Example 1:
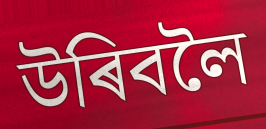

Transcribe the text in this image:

উৰিবলৈ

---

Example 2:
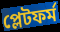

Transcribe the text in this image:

প্লেটফৰ্ম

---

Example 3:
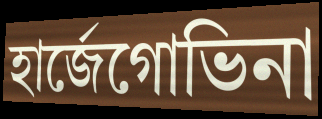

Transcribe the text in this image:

হাৰ্জেগোভিনা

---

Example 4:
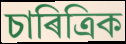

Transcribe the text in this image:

চাৰিত্ৰিক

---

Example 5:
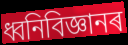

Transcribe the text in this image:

ধ্বনিবিজ্ঞানৰ